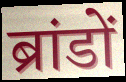
ब्रांडों